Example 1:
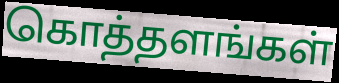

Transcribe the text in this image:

கொத்தளங்கள்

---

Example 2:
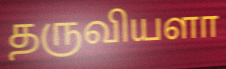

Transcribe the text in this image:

தருவியளா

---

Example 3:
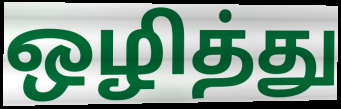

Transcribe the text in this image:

ஒழித்து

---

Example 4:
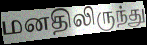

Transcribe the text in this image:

மனதிலிருந்து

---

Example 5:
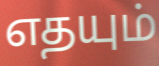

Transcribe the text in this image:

எதயும்